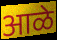
आळे